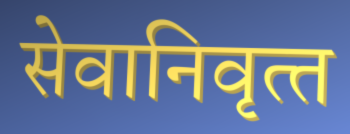
सेवानिवृत्‍त